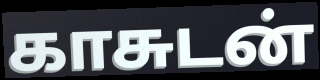
காசுடன்